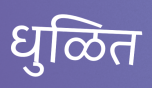
धुळित